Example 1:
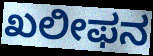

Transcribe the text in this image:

ಖಲೀಫನ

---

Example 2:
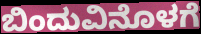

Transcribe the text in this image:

ಬಿಂದುವಿನೊಳಗೆ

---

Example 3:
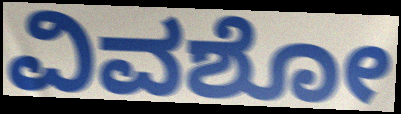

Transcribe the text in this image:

ವಿವಶೋ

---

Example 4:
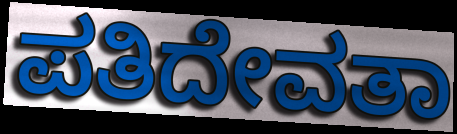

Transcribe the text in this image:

ಪತಿದೇವತಾ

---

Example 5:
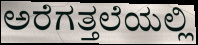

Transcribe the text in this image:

ಅರೆಗತ್ತಲೆಯಲ್ಲಿ